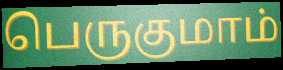
பெருகுமாம்